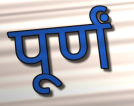
पूर्णं